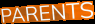
PARENTS